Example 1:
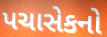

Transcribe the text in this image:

પચાસેકનો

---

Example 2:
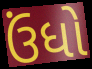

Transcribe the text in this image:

ઉંધો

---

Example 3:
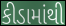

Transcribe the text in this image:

કીડામાંથી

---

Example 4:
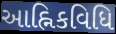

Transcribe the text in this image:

આહ્નિકવિધિ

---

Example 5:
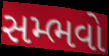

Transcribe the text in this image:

સમ્ભવો